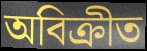
অবিক্রীত